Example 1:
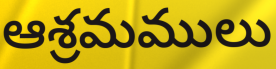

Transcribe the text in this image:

ఆశ్రమములు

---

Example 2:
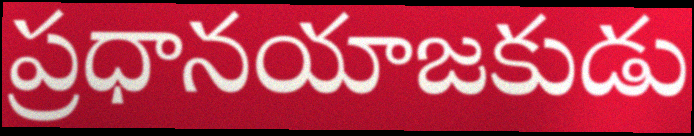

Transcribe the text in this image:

ప్రధానయాజకుడు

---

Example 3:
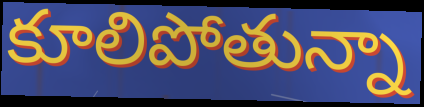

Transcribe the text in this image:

కూలిపోతున్నా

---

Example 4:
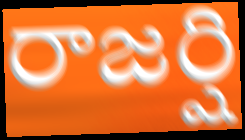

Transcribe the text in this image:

రాజర్షి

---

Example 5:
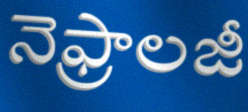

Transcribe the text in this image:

నెఫ్రాలజీ